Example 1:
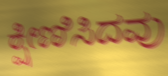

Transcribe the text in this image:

ಕ್ಷೀಣಿಸಿದವು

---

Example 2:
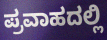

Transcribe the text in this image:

ಪ್ರವಾಹದಲ್ಲಿ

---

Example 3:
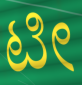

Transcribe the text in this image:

ಟೀ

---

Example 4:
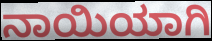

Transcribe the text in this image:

ನಾಯಿಯಾಗಿ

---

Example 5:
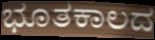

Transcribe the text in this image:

ಭೂತಕಾಲದ